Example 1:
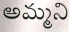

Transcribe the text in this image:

అమ్మని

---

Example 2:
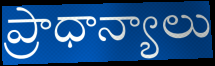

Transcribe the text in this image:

ప్రాధాన్యాలు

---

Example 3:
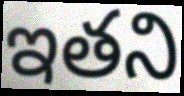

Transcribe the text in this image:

ఇతని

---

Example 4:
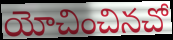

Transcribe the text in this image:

యోచించినచో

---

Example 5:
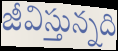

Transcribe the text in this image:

జీవిస్తున్నది